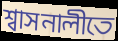
শ্বাসনালীতে